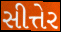
સીત્તેર